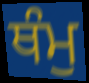
ਥੰਮੁ